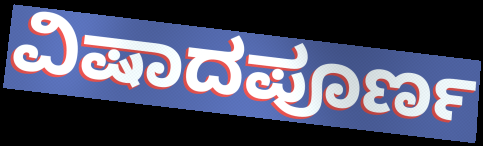
ವಿಷಾದಪೂರ್ಣ